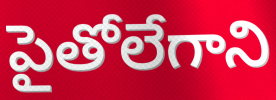
పైతోలేగాని